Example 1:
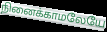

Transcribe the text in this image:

நினைக்காமலேயே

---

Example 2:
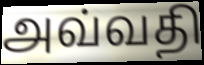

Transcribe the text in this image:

அவ்வதி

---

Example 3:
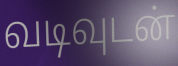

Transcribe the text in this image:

வடிவுடன்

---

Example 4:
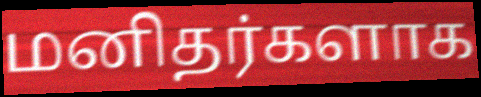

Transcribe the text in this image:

மனிதர்களாக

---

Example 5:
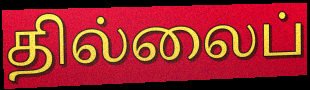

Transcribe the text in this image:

தில்லைப்